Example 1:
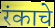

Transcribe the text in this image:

रंकाचे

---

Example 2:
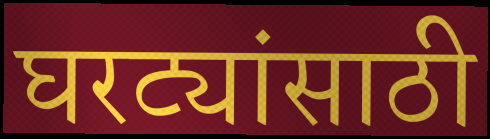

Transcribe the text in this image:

घरट्यांसाठी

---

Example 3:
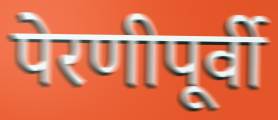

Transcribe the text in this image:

पेरणीपूर्वी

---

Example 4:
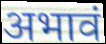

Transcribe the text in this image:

अभावं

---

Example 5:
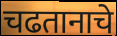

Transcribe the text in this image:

चढतानाचे